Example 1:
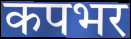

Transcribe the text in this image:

कपभर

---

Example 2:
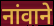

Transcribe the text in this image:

नांवाने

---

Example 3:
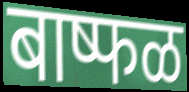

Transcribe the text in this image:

बाष्फळ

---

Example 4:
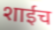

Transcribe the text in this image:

शाईच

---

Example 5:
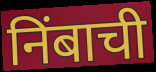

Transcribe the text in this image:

निंबाची